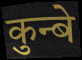
कुन्बे